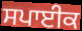
ਸਪਾਈਕ